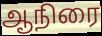
ஆநிரை